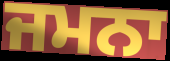
ਜਮਨਾ